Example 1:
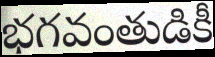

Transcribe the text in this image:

భగవంతుడికీ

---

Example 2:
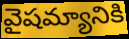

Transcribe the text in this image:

వైషమ్యానికి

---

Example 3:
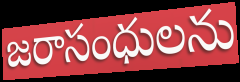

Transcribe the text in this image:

జరాసంధులను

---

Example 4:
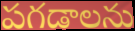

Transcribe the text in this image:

పగడాలను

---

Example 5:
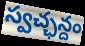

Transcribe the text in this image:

స్వచ్ఛన్దం